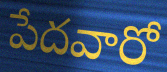
పేదవారో